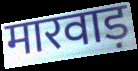
मारवाड़